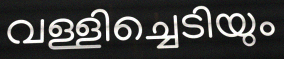
വള്ളിച്ചെടിയും